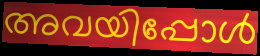
അവയിപ്പോൾ